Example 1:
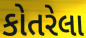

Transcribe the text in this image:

કોતરેલા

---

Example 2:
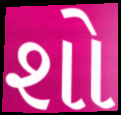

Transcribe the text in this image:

શો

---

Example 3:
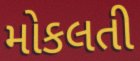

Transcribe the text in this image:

મોકલતી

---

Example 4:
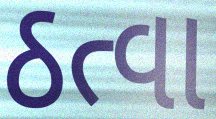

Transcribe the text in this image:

ઠત્વા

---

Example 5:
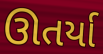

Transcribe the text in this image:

ઊતર્યા